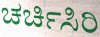
ಚರ್ಚಿಸಿರಿ